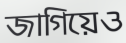
জাগিয়েও